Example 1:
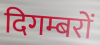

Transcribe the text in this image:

दिगम्बरों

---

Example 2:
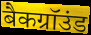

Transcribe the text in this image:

बैकग्रॉउंड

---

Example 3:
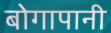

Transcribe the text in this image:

बोगापानी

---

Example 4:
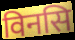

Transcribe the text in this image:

विनसि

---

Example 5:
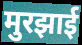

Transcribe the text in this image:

मुरझाई